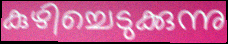
കുഴിച്ചെടുക്കുന്നു